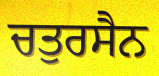
ਚਤੁਰਸੈਨ